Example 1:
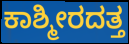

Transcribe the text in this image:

ಕಾಶ್ಮೀರದತ್ತ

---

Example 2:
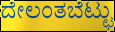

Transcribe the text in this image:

ದೇಲಂತಬೆಟ್ಟು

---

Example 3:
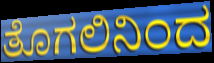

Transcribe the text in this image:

ತೊಗಲಿನಿಂದ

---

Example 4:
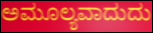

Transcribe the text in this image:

ಅಮೂಲ್ಯವಾದುದು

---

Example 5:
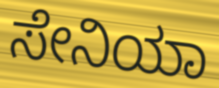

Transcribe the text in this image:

ಸೇನಿಯಾ